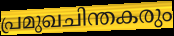
പ്രമുഖചിന്തകരും